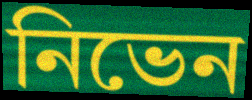
নিভেন